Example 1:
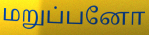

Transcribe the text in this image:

மறுப்பனோ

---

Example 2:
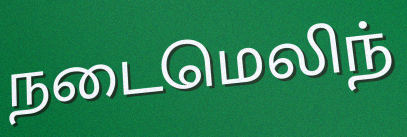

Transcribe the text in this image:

நடைமெலிந்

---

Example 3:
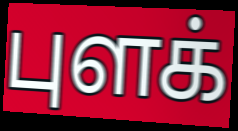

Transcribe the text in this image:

புளக்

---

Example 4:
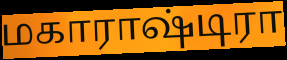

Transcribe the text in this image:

மகாராஷ்டிரா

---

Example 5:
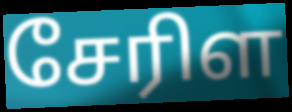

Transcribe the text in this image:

சேரிள